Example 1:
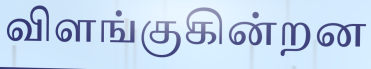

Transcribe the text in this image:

விளங்குகின்றன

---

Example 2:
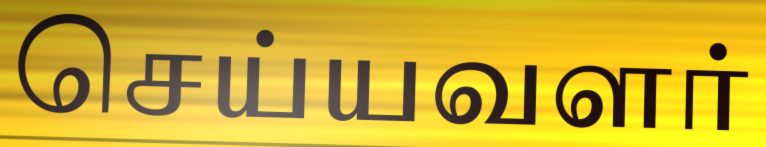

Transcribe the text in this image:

செய்யவளர்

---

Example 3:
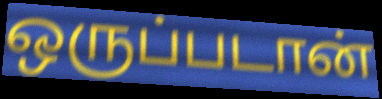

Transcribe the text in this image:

ஒருப்படான்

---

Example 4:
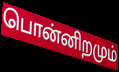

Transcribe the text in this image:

பொன்னிறமும்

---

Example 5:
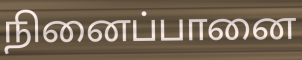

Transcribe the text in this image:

நினைப்பானை